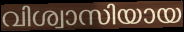
വിശ്വാസിയായ